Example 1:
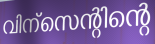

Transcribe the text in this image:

വിന്സെന്റിന്റെ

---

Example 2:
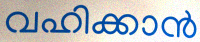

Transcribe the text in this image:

വഹിക്കാൻ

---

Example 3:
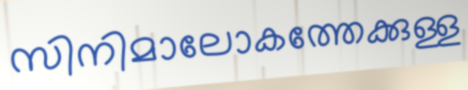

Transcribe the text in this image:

സിനിമാലോകത്തേക്കുള്ള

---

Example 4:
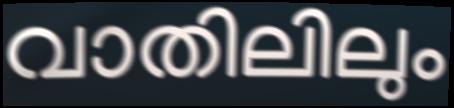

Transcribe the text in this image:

വാതിലിലും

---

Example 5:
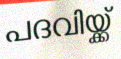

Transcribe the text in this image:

പദവിയ്ക്ക്